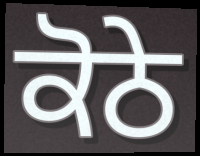
ਕੋਠੇ